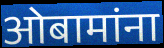
ओबामांना